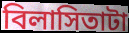
বিলাসিতাটা